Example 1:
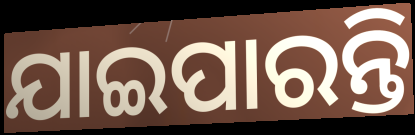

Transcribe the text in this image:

ଯାଇପାରନ୍ତି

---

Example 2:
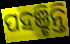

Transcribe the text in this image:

ପହଞ୍ଚିନ୍ତି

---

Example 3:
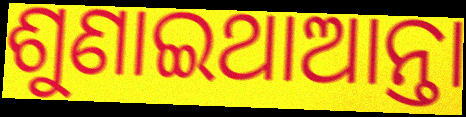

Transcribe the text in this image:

ଶୁଣାଇଥାଆନ୍ତା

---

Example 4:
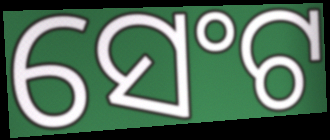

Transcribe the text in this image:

ସେଂଟ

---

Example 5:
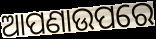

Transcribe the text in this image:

ଆପଣାଉପରେ